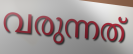
വരുന്നത്